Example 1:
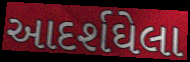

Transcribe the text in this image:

આદર્શઘેલા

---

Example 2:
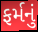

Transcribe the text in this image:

ફર્મનું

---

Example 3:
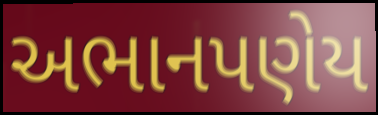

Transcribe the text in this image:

અભાનપણેય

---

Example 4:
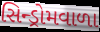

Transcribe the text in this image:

સિન્ડ્રોમવાળા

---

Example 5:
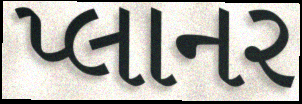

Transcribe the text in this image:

પ્લાનર